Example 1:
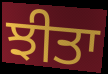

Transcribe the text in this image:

ਝੀਤਾ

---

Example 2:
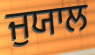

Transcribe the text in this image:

ਜੁਯਾਲ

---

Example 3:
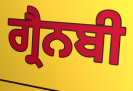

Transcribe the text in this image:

ਗ੍ਰੈਨਬੀ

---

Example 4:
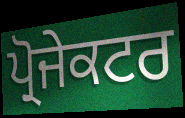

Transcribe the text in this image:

ਪ੍ਰੋਜੇਕਟਰ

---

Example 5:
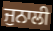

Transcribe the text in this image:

ਜੁਨਾਲੀ